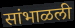
सांभाळली